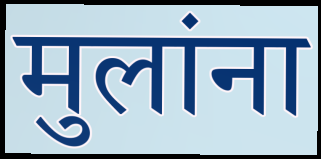
मुलांना